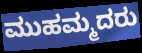
ಮುಹಮ್ಮದರು